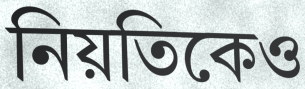
নিয়তিকেও